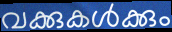
വക്കുകൾക്കും